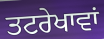
ਤਟਰੇਖਾਵਾਂ